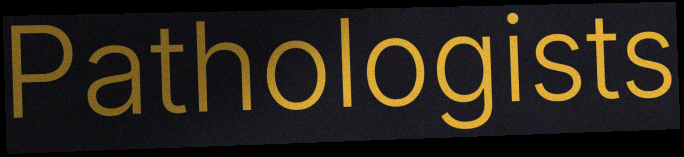
Pathologists